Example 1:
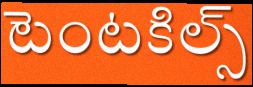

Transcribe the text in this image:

టెంటకిల్స్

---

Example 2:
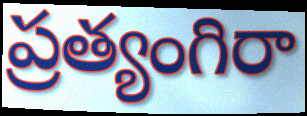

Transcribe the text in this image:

ప్రత్యంగిరా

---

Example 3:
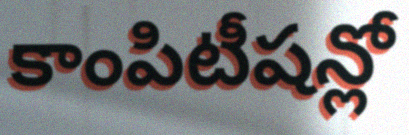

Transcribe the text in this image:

కాంపిటీషన్లో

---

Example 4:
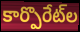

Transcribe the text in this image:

కార్పొరేట్‌ల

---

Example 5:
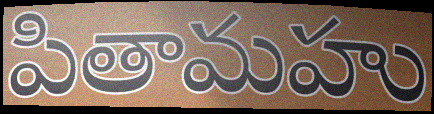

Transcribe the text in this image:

పితామహు